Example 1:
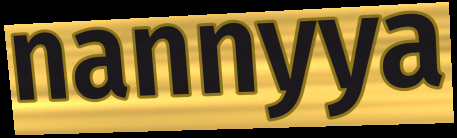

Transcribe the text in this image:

nannyya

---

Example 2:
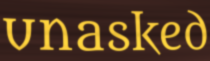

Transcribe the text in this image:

unasked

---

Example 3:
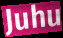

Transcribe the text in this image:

Juhu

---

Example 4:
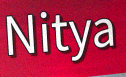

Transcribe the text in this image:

Nitya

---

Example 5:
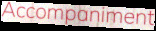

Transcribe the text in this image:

Accompaniment